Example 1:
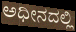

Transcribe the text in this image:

ಅಧೀನದಲ್ಲಿ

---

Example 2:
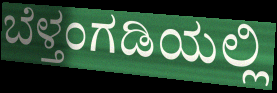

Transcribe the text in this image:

ಬೆಳ್ತಂಗಡಿಯಲ್ಲಿ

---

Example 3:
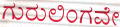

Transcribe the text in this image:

ಗುರುಲಿಂಗವೇ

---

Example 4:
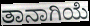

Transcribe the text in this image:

ತಾನಾಗಿಯೆ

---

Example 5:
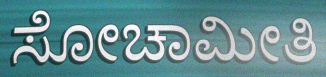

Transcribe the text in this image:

ಸೋಚಾಮೀತಿ